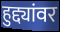
हुद्द्यांवर